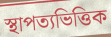
স্থাপত্যভিত্তিক